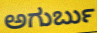
ಅಗುರ್ಬು